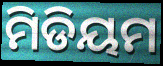
ମିଡିୟମ